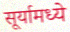
सूर्यामध्ये